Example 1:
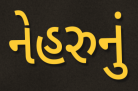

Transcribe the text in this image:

નેહરુનું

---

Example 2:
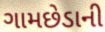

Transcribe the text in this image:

ગામછેડાની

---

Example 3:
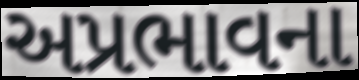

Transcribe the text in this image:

અપ્રભાવના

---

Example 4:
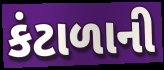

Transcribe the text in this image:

કંટાળાની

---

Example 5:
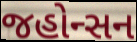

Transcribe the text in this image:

જહોન્સન